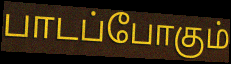
பாடப்போகும்